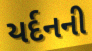
યર્દનની